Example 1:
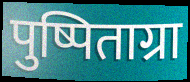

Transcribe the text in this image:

पुष्पिताग्रा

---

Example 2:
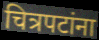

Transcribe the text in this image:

चित्रपटांना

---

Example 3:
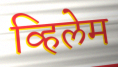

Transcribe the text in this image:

व्हिलेम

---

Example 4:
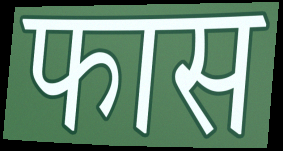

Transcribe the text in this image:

फास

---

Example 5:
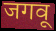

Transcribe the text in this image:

जगवू